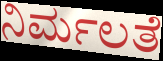
ನಿರ್ಮಲತೆ